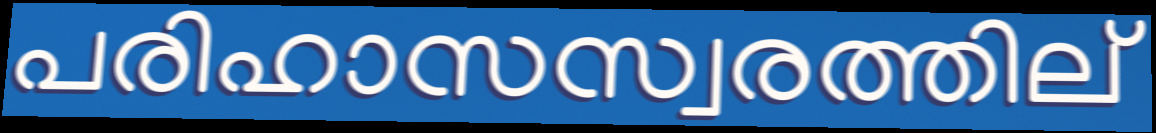
പരിഹാസസ്വരത്തില്